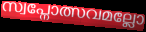
സ്വപ്നോത്സവമല്ലോ